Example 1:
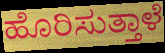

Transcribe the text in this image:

ಹೊರಿಸುತ್ತಾಳೆ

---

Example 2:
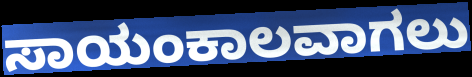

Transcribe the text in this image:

ಸಾಯಂಕಾಲವಾಗಲು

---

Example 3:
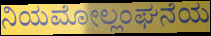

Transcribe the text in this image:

ನಿಯಮೋಲ್ಲಂಘನೆಯ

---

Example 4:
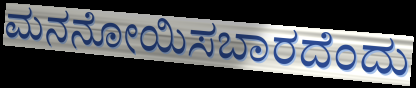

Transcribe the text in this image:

ಮನನೋಯಿಸಬಾರದೆಂದು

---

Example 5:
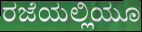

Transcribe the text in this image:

ರಜೆಯಲ್ಲಿಯೂ